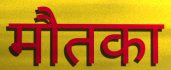
मौतका